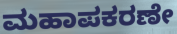
ಮಹಾಪಕರಣೇ